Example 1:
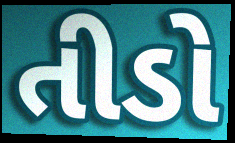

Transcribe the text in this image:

તીડો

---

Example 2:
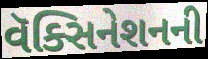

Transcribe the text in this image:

વૅક્સિનેશનની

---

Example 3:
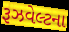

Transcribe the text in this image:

રૂઝવેલ્ટના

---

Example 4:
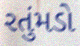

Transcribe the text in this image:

રતુંમડો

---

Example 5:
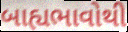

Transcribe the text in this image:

બાહ્યભાવોથી